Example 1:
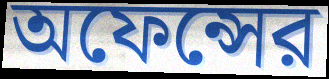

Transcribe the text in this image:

অফেন্সের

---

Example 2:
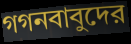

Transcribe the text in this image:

গগনবাবুদের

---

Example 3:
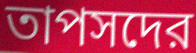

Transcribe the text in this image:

তাপসদের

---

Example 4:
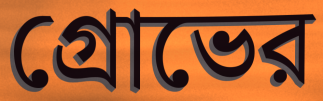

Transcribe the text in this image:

গ্রোভের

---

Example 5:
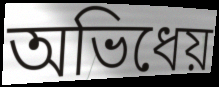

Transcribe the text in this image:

অভিধেয়